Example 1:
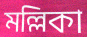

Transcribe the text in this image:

মল্লিকা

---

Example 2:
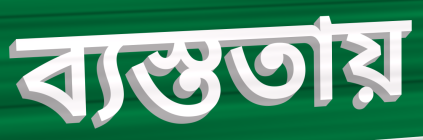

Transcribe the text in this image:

ব্যস্ততায়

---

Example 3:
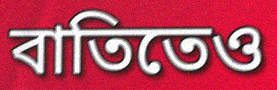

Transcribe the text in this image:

বাতিতেও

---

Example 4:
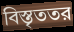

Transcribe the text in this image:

বিস্তৃততর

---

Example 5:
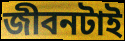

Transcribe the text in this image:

জীবনটাই